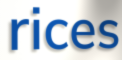
rices